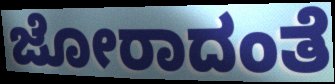
ಜೋರಾದಂತೆ